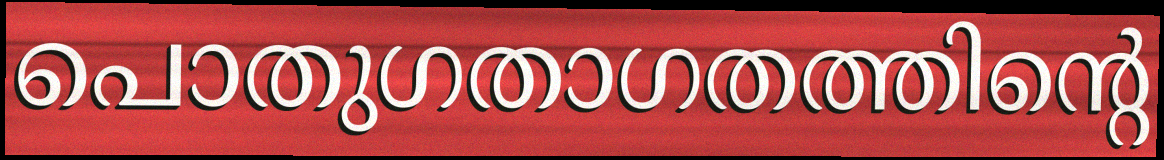
പൊതുഗതാഗതത്തിന്റെ